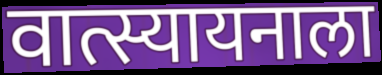
वात्स्यायनाला